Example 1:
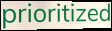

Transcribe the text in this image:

prioritized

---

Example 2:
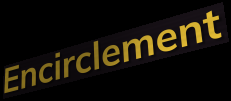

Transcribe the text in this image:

Encirclement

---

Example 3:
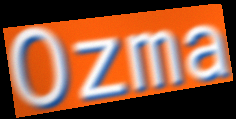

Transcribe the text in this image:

Ozma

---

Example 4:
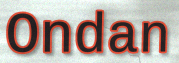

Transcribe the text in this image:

Ondan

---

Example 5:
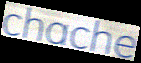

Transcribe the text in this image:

chache